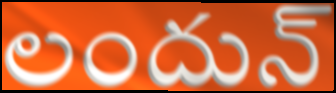
లందున్